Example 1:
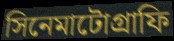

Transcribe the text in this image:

সিনেমাটোগ্রাফি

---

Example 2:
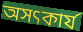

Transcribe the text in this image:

অসৎকার্য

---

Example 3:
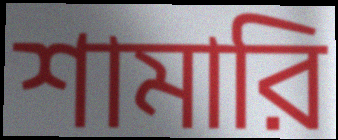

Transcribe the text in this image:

শামারি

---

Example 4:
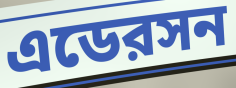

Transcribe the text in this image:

এডেরসন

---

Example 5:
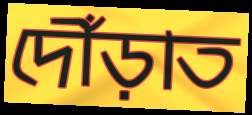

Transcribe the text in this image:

দৌঁড়াত